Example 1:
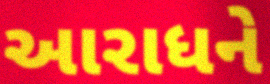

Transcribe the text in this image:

આરાધને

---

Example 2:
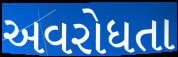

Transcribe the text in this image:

અવરોધતા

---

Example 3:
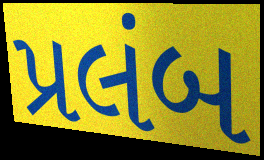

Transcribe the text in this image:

પ્રલંબ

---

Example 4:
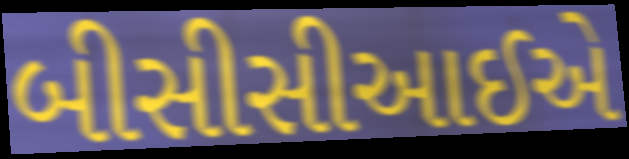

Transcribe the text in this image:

બીસીસીઆઈએ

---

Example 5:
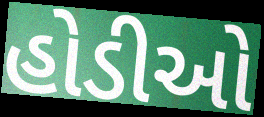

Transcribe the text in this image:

હોડીઓ